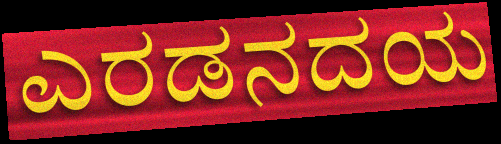
ಎರಡನದಯ